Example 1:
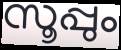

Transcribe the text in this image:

സൂപ്പും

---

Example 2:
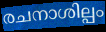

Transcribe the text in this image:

രചനാശില്പം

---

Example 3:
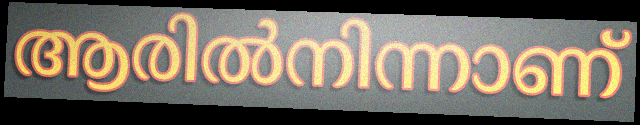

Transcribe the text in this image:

ആരിൽനിന്നാണ്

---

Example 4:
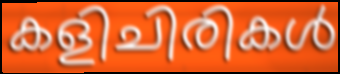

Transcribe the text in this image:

കളിചിരികൾ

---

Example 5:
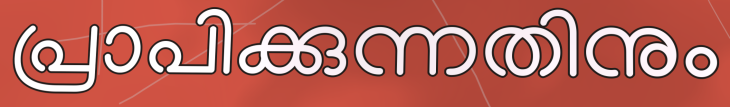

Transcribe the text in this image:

പ്രാപിക്കുന്നതിനും